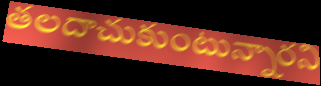
తలదాచుకుంటున్నారని